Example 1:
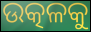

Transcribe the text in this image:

ଉତ୍କଳକୁ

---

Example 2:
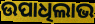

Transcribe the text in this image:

ଉପାଧିଲାଭ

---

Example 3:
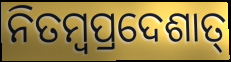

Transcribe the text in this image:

ନିତମ୍ବପ୍ରଦେଶାତ୍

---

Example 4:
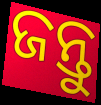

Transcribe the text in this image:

ଜନ୍ତୁ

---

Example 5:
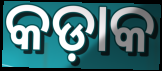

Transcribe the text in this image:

କଡ଼ାକ